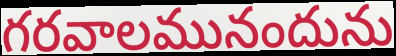
గరవాలమునందును